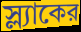
স্ল্যাকের